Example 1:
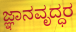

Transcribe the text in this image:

ಜ್ಞಾನವೃದ್ಧರ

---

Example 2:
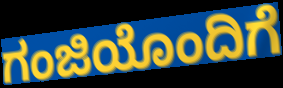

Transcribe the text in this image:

ಗಂಜಿಯೊಂದಿಗೆ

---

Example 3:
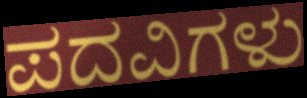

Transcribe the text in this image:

ಪದವಿಗಳು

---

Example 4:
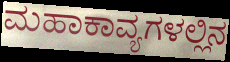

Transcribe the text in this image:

ಮಹಾಕಾವ್ಯಗಳಲ್ಲಿನ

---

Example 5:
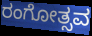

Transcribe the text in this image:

ರಂಗೋತ್ಸವ